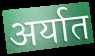
अर्यात